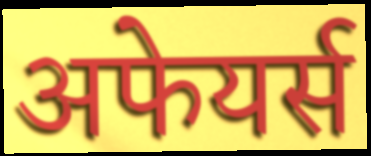
अफेयर्स